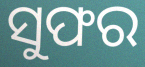
ସୁଫର